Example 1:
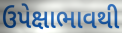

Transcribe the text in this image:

ઉપેક્ષાભાવથી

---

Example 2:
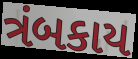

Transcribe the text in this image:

ત્રંબકાય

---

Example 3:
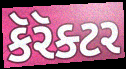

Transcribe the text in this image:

કૅરૅક્ટર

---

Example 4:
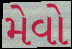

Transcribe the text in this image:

મેવો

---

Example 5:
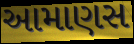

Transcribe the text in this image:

આમાણસ